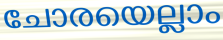
ചോരയെല്ലാം